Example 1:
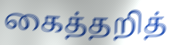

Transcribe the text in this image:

கைத்தறித்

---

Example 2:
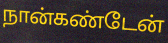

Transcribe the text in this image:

நான்கண்டேன்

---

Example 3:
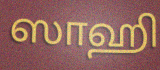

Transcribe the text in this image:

ஸாஹி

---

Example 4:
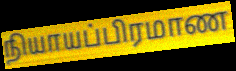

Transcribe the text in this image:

நியாயப்பிரமாண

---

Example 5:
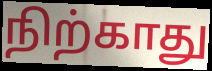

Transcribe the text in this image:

நிற்காது